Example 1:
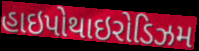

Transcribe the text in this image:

હાઇપોથાઇરોડિઝમ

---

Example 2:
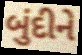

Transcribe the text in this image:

બુંદીને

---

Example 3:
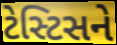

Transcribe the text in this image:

ટેસ્ટિસને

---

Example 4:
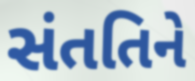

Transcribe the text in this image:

સંતતિને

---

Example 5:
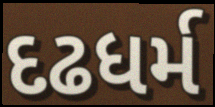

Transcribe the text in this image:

દઢધર્મ